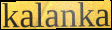
kalanka